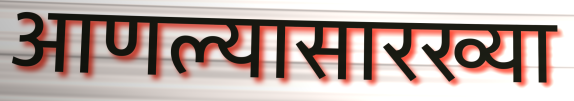
आणल्यासारख्या